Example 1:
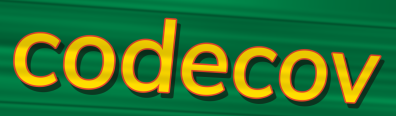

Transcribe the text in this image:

codecov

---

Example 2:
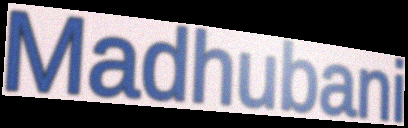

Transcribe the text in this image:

Madhubani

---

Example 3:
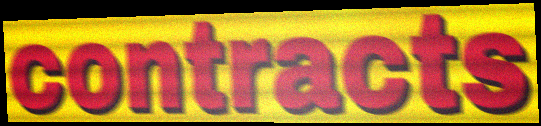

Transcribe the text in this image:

contracts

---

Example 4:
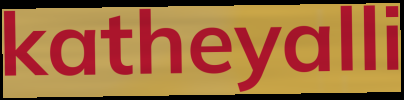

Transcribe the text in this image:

katheyalli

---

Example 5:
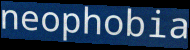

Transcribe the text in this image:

neophobia